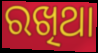
ରଖିଥା